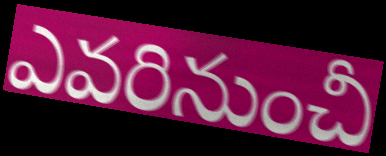
ఎవరినుంచీ